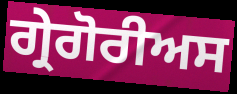
ਗ੍ਰੇਗੋਰੀਅਸ